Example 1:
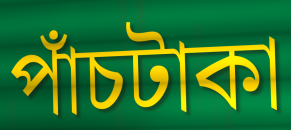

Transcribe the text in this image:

পাঁচটাকা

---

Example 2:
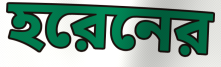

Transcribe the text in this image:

হরেনের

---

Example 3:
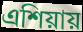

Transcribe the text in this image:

এশিয়ায়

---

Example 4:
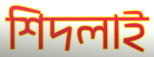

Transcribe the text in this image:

শিদলাই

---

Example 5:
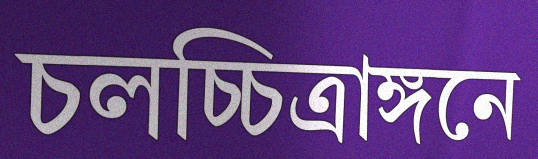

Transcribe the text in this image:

চলচ্চিত্রাঙ্গনে